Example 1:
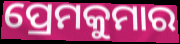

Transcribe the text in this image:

ପ୍ରେମକୁମାର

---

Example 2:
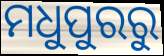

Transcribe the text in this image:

ମଧୁପୁରରୁ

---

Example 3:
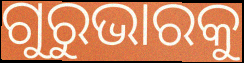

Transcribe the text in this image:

ଗୁରୁଭାରକୁ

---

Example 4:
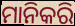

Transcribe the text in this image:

ମାନିକରି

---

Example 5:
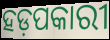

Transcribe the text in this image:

ହଡ଼ପକାରୀ